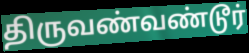
திருவண்வண்டூர்